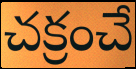
చక్రంచే